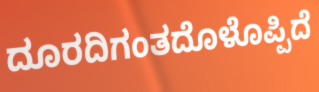
ದೂರದಿಗಂತದೊಳೊಪ್ಪಿದೆ